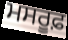
ਮਸਰੂਫ਼